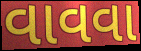
વાવવા